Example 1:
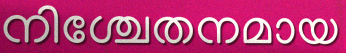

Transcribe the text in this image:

നിശ്ചേതനമായ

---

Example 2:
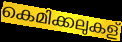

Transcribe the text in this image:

കെമിക്കലുകള്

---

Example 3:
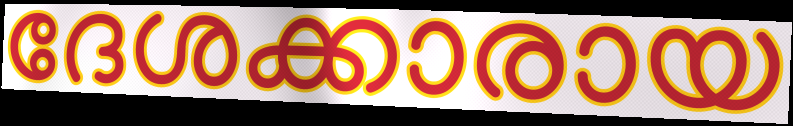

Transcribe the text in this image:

ദേശക്കാരായ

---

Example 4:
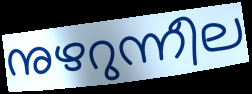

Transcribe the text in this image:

നുഴറുന്നീല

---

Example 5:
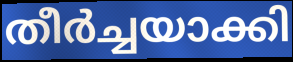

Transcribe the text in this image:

തീർച്ചയാക്കി